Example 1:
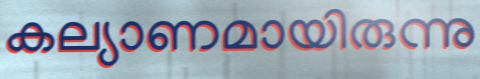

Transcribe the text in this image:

കല്യാണമായിരുന്നു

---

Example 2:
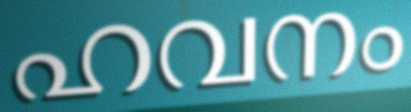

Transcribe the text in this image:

ഹവനം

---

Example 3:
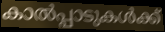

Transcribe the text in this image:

കാൽപ്പാടുകൾക്ക്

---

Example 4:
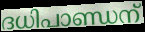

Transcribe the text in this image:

ദധിപാണ്ഡന്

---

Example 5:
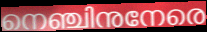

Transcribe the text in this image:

നെഞ്ചിനുനേരെ